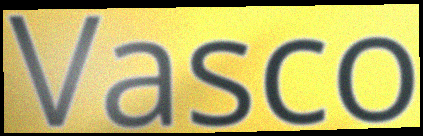
Vasco